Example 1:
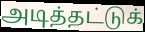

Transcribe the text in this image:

அடித்தட்டுக்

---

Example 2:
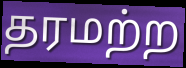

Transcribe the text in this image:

தரமற்ற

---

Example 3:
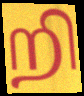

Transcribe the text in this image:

றி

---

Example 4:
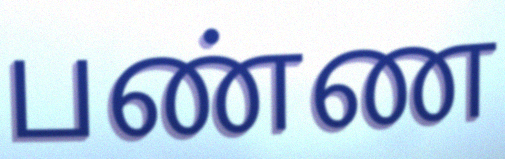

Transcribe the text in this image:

பண்ண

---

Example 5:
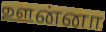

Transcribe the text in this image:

ஊன்னா